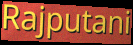
Rajputani